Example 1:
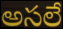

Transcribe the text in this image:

అసలే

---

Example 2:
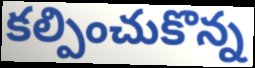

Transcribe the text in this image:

కల్పించుకొన్న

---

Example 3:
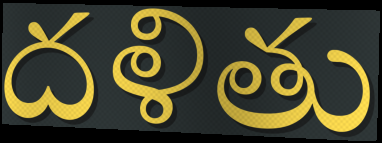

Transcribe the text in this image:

దళితు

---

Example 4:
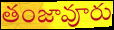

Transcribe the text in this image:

తంజావూరు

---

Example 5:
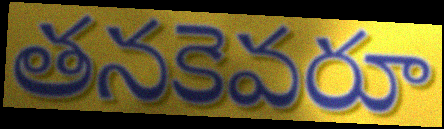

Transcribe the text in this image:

తనకెవరూ